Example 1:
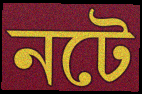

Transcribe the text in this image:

নটে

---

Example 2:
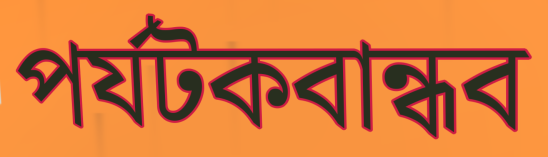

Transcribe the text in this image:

পর্যটকবান্ধব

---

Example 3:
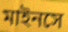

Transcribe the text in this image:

মাইনসে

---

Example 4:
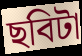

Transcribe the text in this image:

ছবিটা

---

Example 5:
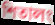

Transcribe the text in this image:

শিতালং